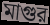
মাগুর